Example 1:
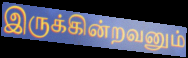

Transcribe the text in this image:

இருக்கின்றவனும்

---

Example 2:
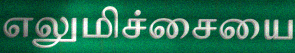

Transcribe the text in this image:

எலுமிச்சையை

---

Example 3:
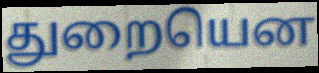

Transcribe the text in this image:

துறையென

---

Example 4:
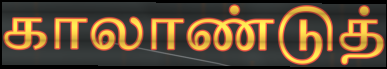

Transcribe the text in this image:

காலாண்டுத்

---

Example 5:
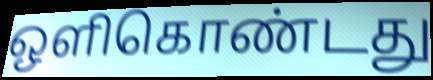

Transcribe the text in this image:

ஒளிகொண்டது